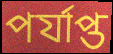
পৰ্যাপ্ত